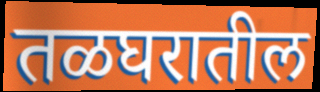
तळघरातील